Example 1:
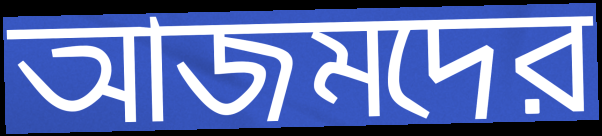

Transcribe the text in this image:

আজমদের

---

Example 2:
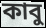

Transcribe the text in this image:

কাবু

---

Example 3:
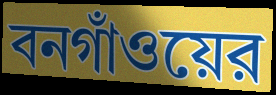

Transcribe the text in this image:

বনগাঁওয়ের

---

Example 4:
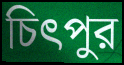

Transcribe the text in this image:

চিৎপুর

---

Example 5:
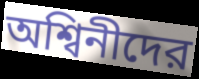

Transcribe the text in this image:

অশ্বিনীদের